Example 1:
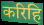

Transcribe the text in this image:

करिहि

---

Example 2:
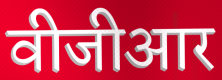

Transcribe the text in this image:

वीजीआर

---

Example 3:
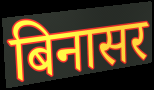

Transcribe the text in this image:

बिनासर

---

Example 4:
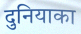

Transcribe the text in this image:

दुनियाका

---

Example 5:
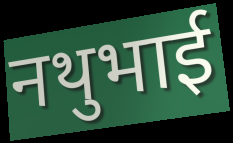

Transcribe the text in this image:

नथुभाई